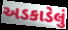
અડકાડેલું